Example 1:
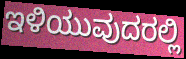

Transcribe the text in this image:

ಇಳಿಯುವುದರಲ್ಲಿ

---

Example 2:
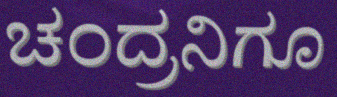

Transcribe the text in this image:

ಚಂದ್ರನಿಗೂ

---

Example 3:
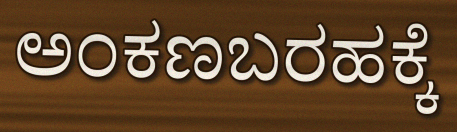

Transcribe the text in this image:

ಅಂಕಣಬರಹಕ್ಕೆ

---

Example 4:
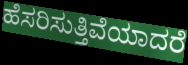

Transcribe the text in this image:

ಹೆಸರಿಸುತ್ತಿವೆಯಾದರೆ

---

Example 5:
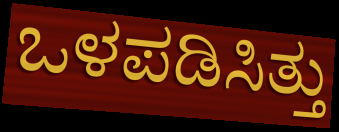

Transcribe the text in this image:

ಒಳಪಡಿಸಿತ್ತು